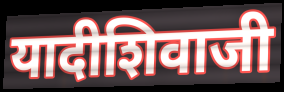
यादीशिवाजी